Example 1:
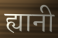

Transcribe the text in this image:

ह्यानी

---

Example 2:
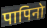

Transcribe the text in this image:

पापिनो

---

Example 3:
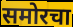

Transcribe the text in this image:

समोरचा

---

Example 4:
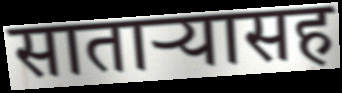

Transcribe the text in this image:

साताऱ्यासह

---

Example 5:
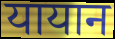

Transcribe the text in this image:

यायान